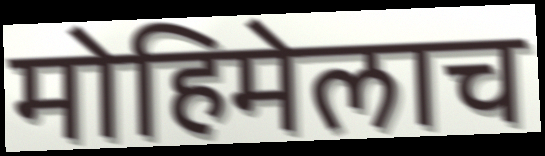
मोहिमेलाच